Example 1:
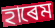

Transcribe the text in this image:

হাৰেম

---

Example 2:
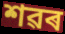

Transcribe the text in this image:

শৱৰ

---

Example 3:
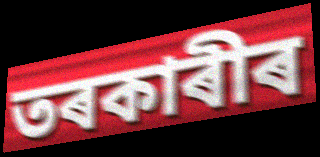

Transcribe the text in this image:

তৰকাৰীৰ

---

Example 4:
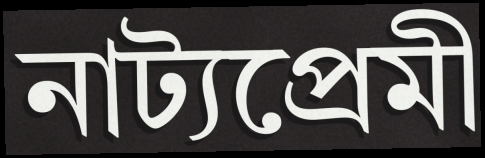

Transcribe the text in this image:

নাট্যপ্ৰেমী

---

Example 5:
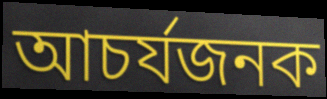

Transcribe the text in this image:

আচৰ্যজনক